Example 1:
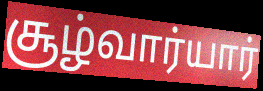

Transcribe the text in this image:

சூழ்வார்யார்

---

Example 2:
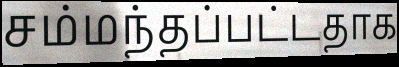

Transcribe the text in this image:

சம்மந்தப்பட்டதாக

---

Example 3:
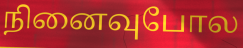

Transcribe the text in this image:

நினைவுபோல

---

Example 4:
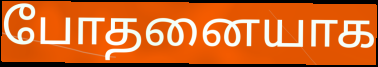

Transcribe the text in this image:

போதனையாக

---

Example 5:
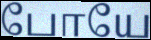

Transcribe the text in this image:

போயே